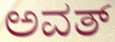
ಅವತ್